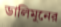
ডালিমুনের